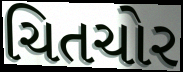
ચિતચોર